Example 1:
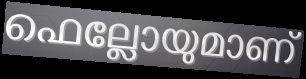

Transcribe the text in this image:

ഫെല്ലോയുമാണ്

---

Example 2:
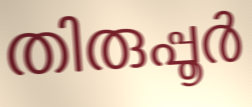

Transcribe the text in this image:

തിരുപ്പൂർ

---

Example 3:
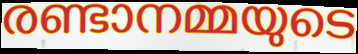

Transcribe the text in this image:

രണ്ടാനമ്മയുടെ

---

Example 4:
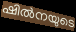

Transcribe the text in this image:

ഷിൽനയുടെ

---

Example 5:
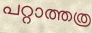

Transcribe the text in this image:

പറ്റാത്തത്ര